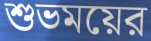
শুভময়ের